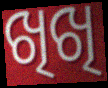
ଖିଖି